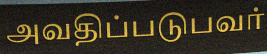
அவதிப்படுபவர்